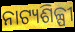
ନାଟ୍ୟଶିଳ୍ପୀ